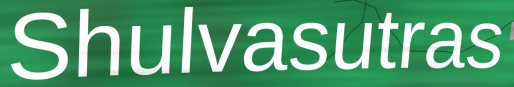
Shulvasutras